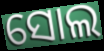
ସୋଲ